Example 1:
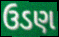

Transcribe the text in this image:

ઉડણ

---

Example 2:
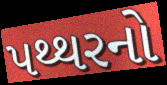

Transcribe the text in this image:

પથ્થરનો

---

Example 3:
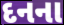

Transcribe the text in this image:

દનના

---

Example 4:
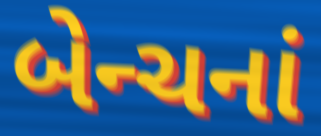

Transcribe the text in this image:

બેન્ચનાં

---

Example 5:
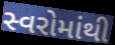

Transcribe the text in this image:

સ્વરોમાંથી